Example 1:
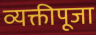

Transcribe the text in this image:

व्यक्तीपूजा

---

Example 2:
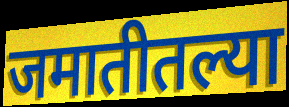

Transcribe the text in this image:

जमातीतल्या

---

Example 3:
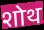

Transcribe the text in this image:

शोथ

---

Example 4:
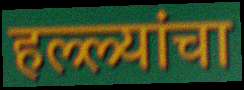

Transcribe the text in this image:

हल्ल्यांचा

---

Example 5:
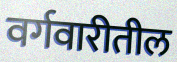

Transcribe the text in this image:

वर्गवारीतील